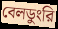
বেলডুংরি